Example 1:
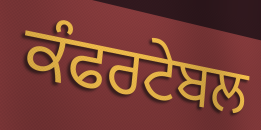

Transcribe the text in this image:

ਕੰਫਰਟੇਬਲ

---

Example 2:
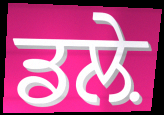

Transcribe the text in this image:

ਡਲ਼ੇ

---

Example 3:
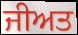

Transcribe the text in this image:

ਜੀਅਤ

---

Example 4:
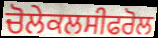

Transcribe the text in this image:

ਚੋਲੇਕਲਸੀਫਰੋਲ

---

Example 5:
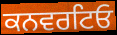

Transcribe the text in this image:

ਕਨਵਰਟਿਓ